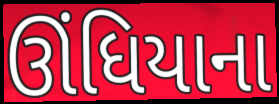
ઊંધિયાના